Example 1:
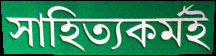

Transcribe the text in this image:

সাহিত্যকর্মই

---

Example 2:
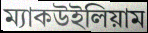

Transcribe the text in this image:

ম্যাকউইলিয়াম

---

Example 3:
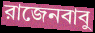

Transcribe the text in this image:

রাজেনবাবু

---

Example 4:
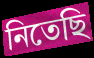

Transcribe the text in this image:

নিতেছি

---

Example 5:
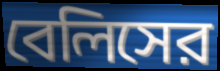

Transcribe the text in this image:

বেলিসের